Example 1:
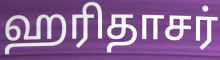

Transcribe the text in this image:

ஹரிதாசர்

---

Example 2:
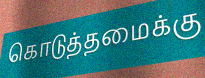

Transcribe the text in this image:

கொடுத்தமைக்கு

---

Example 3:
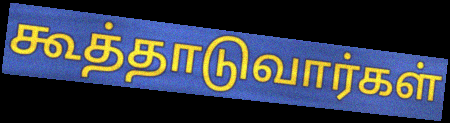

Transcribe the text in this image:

கூத்தாடுவார்கள்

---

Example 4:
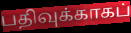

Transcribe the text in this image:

பதிவுக்காகப்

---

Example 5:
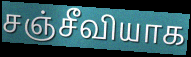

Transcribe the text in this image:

சஞ்சீவியாக